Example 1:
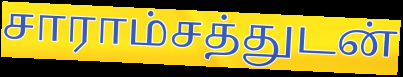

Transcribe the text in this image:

சாராம்சத்துடன்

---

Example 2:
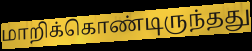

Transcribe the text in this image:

மாறிக்கொண்டிருந்தது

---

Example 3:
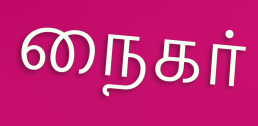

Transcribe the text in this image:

நைகர்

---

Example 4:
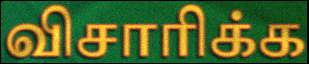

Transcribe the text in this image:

விசாரிக்க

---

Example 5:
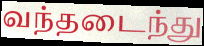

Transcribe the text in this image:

வந்தடைந்து